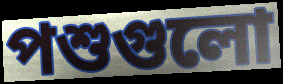
পশুগুলো